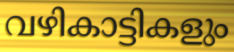
വഴികാട്ടികളും